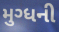
મુગ્ધની